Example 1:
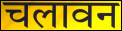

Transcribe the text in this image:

चलावन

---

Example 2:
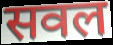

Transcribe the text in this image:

सवल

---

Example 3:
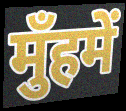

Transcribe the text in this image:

मुँहमें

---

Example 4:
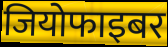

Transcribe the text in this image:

जियोफाइबर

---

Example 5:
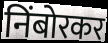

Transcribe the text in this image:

निंबोरकर